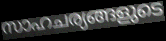
സാഹചര്യങ്ങളുടെ